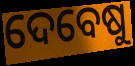
ଦେବେଷୁ